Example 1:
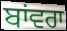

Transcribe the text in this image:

ਬਾਂਵਰਾ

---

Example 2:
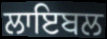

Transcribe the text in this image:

ਲਾਇਬਲ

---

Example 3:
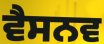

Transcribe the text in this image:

ਵੈਸਨਵ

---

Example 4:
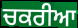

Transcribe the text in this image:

ਚਕਰੀਆ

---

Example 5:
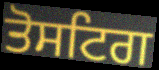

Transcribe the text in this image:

ਤੋਸਟਿਗ